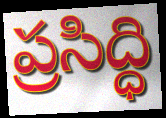
ప్రసిద్ధి